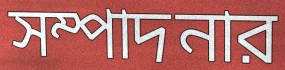
সম্পাদনার